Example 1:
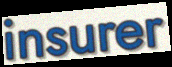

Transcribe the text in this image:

insurer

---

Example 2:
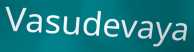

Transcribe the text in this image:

Vasudevaya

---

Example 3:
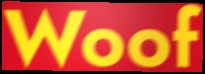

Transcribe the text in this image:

Woof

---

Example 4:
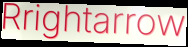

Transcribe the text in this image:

Rrightarrow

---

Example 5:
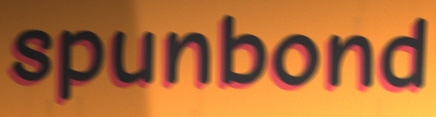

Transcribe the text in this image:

spunbond